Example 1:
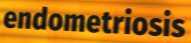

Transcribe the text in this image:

endometriosis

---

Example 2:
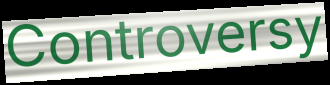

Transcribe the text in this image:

Controversy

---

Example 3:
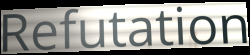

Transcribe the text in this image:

Refutation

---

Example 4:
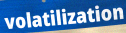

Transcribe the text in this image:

volatilization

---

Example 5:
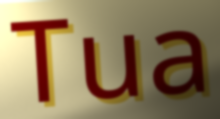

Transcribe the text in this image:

Tua